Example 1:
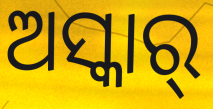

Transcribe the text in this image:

ଅସ୍କାର୍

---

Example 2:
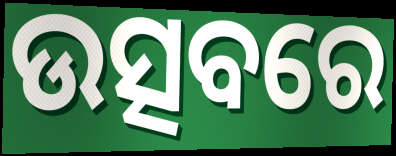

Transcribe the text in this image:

ଉତ୍ସବରେ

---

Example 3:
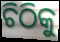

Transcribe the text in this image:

ଚିଠିକୁ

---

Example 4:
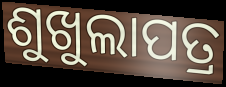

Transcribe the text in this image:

ଶୁଖୁଲାପତ୍ର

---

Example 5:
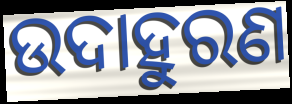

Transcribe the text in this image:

ଉଦାହୁରଣ